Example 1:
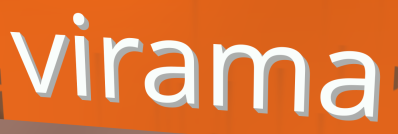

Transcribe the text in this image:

virama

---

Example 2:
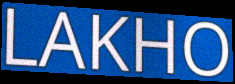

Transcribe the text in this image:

LAKHO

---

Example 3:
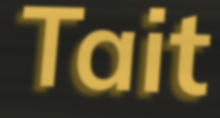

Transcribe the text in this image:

Tait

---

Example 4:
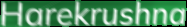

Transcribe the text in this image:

Harekrushna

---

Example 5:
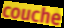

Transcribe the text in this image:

couche